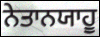
ਨੇਤਾਨਯਾਹੂ